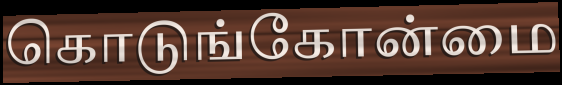
கொடுங்கோன்மை